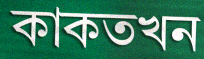
কাকতখন